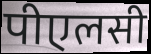
पीएलसी